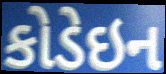
કોડેઇન